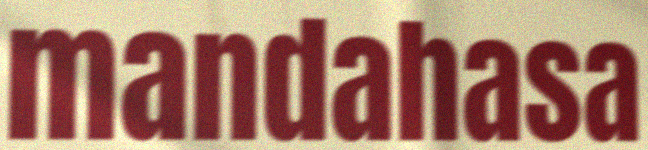
mandahasa